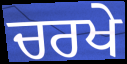
ਚਰਖੇ